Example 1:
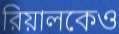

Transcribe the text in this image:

রিয়ালকেও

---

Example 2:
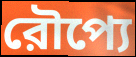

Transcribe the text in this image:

রৌপ্যে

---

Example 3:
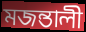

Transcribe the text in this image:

মজন্তালী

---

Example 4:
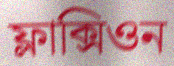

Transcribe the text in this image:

ফ্লাক্সিওন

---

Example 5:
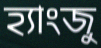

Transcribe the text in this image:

হ্যাংজু